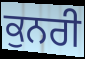
ਕੁਨਰੀ